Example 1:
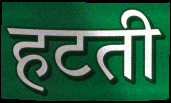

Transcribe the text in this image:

हटती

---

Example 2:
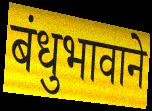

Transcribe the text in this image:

बंधुभावाने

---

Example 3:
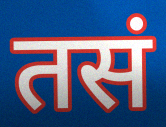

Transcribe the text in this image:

तसं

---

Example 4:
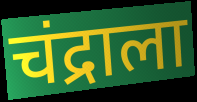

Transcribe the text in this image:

चंद्राला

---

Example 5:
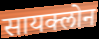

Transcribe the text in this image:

सायक्लोन